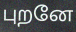
புறனே